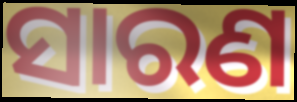
ସାରଣ